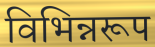
विभिन्नरूप